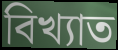
বিখ্যাত